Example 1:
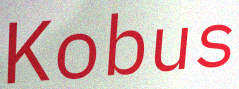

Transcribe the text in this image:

Kobus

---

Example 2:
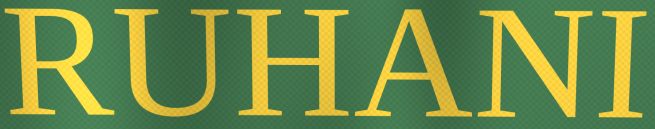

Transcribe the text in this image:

RUHANI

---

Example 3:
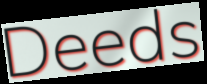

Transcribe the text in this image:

Deeds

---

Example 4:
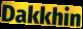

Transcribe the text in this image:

Dakkhin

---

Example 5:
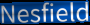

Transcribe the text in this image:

Nesfield